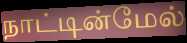
நாட்டின்மேல்